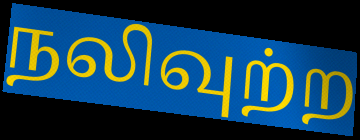
நலிவுற்ற